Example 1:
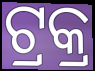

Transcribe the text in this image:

ଟ୍ରକ୍ର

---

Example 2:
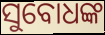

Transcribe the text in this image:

ସୁବୋଧଙ୍କ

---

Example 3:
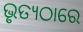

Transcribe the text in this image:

ଭୃତ୍ୟଠାରେ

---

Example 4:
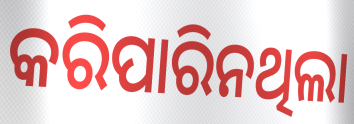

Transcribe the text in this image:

କରିପାରିନଥିଲା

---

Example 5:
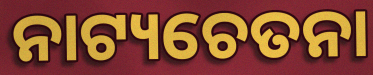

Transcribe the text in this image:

ନାଟ୍ୟଚେତନା